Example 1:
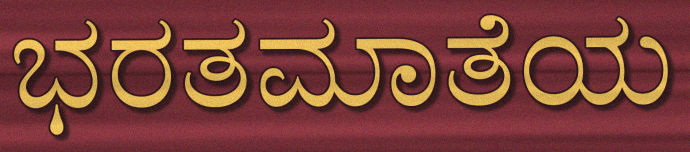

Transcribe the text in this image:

ಭರತಮಾತೆಯ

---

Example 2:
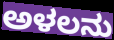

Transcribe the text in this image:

ಅಳಲನು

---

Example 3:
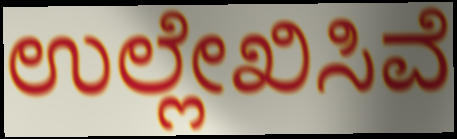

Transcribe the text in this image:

ಉಲ್ಲೇಖಿಸಿವೆ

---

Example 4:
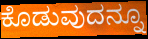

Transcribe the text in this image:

ಕೊಡುವುದನ್ನೂ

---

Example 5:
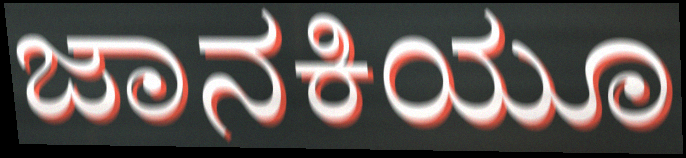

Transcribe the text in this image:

ಜಾನಕಿಯೂ